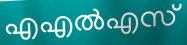
എഎൽഎസ്